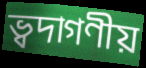
ভ্বদাগণীয়